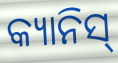
କ୍ୟାନିସ୍